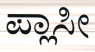
ಪ್ಲಾಸೀ